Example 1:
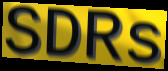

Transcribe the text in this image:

SDRs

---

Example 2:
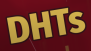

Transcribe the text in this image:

DHTs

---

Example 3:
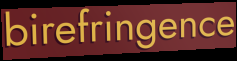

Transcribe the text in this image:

birefringence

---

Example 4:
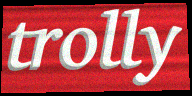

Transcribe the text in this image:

trolly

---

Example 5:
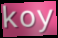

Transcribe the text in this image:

koy